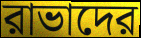
রাভাদের